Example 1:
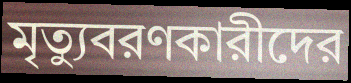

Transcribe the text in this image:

মৃত্যুবরণকারীদের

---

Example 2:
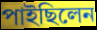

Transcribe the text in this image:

পাইছিলেন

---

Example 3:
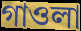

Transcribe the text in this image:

গাওলা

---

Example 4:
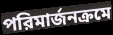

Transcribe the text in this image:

পরিমার্জনক্রমে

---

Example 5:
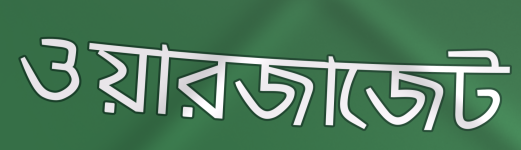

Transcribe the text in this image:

ওয়ারজাজেট